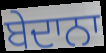
ਬੇਦਾਨਾ